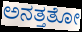
ಅನತ್ತತೋ